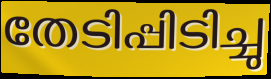
തേടിപ്പിടിച്ചു